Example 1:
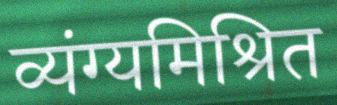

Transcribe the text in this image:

व्यंग्यमिश्रित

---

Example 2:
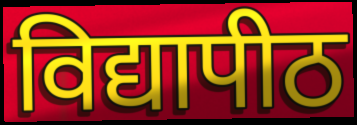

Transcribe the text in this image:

विद्यापीठ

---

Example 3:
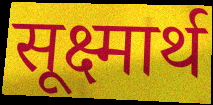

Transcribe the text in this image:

सूक्ष्मार्थ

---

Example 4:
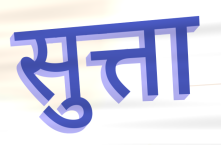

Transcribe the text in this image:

सुत्ता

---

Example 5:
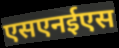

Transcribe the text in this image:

एसएनईएस